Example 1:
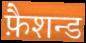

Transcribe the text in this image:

फ़ैशन्ड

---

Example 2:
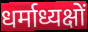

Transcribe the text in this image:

धर्माध्यक्षों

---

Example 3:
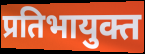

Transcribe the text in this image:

प्रतिभायुक्त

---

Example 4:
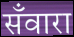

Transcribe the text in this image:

सँवारा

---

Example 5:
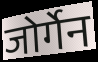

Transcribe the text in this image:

जोर्गेन